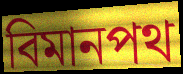
বিমানপথ